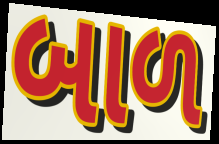
બાળ